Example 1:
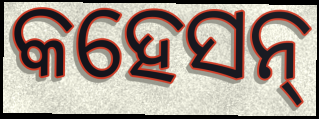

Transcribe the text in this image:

କହେସନ୍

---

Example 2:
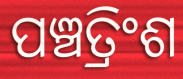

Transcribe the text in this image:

ପଞ୍ଚତ୍ରିଂଶ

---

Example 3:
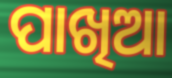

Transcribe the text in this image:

ପାଖିଆ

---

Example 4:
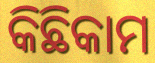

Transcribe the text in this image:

କିଛିକାମ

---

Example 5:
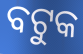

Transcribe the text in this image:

ବଟୁକ